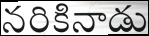
నరికినాడు